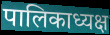
पालिकाध्यक्ष